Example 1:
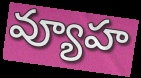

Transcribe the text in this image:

వ్యూహ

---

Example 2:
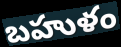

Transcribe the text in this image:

బహుళం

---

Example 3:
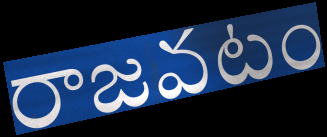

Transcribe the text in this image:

రాజవటం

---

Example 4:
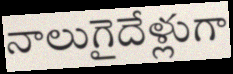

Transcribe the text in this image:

నాలుగైదేళ్లుగా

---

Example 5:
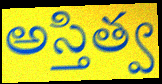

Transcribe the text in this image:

అస్తిత్వ